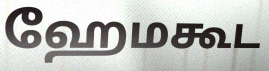
ஹேமகூட